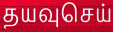
தயவுசெய்